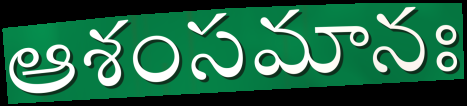
ఆశంసమానః